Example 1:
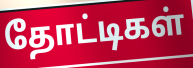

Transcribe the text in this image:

தோட்டிகள்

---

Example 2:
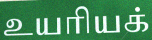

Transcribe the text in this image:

உயரியக்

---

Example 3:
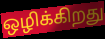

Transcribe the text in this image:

ஒழிக்கிறது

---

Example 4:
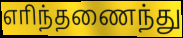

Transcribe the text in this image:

எரிந்தணைந்து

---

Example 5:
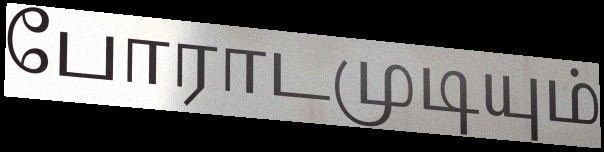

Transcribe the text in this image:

போராடமுடியும்